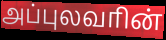
அப்புலவரின்